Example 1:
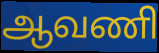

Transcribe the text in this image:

ஆவணி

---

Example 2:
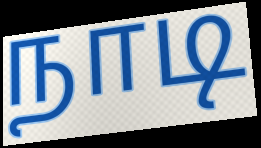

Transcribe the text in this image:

நாடி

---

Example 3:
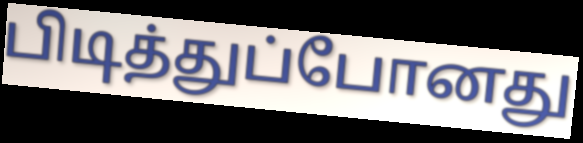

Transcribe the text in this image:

பிடித்துப்போனது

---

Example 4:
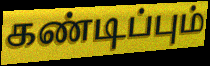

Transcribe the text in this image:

கண்டிப்பும்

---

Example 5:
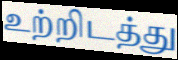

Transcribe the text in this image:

உற்றிடத்து